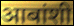
आबांशी